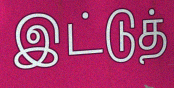
இட்டுத்